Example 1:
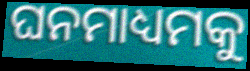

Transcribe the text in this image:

ଘନମାଧ୍ୟମକୁ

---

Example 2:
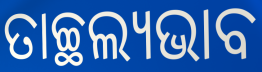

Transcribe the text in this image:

ତାଚ୍ଛଲ୍ୟଭାବ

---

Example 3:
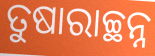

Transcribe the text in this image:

ତୁଷାରାଚ୍ଛନ୍ନ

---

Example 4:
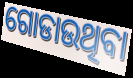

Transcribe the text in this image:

ଗୋଡାଉଥିବା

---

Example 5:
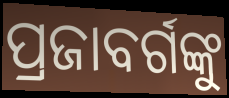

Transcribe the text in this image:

ପ୍ରଜାବର୍ଗଙ୍କୁ